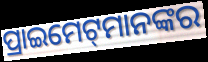
ପ୍ରାଇମେଟ୍‌ମାନଙ୍କର